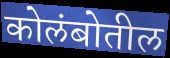
कोलंबोतील